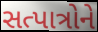
સત્પાત્રોને